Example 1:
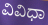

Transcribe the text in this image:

ವಿವಿಧಾ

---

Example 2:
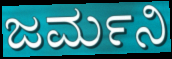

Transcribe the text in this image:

ಜರ್ಮನಿ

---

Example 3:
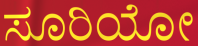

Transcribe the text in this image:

ಸೂರಿಯೋ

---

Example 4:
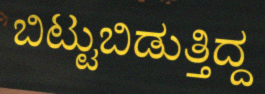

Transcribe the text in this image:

ಬಿಟ್ಟುಬಿಡುತ್ತಿದ್ದ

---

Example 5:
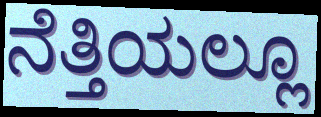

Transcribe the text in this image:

ನೆತ್ತಿಯಲ್ಲೂ